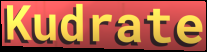
Kudrate